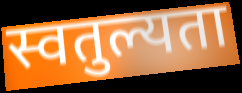
स्वतुल्यता